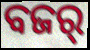
ବଜର୍